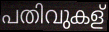
പതിവുകള്